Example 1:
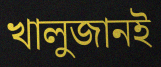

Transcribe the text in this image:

খালুজানই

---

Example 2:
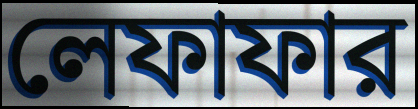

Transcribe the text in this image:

লেফাফার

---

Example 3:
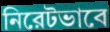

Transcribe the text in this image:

নিরেটভাবে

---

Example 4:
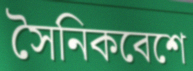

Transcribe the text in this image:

সৈনিকবেশে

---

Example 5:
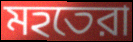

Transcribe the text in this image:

মহতেরা